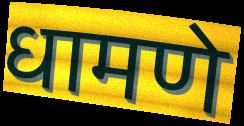
धामणे